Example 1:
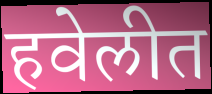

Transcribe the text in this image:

हवेलीत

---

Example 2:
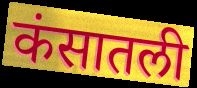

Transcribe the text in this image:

कंसातली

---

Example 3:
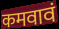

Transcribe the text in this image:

कमवावं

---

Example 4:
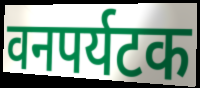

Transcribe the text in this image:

वनपर्यटक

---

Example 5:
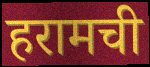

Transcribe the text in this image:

हरामची